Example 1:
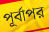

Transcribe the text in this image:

পূর্বাপর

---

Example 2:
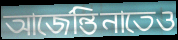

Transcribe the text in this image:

আর্জেন্তিনাতেও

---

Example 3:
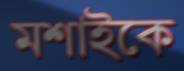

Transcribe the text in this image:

মশাইকে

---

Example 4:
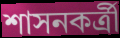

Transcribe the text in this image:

শাসনকর্ত্রী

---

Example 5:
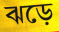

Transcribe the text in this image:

ঝড়ে